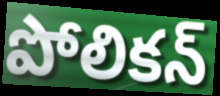
పోలికన్